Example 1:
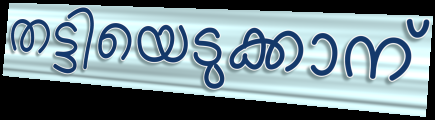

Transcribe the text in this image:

തട്ടിയെടുക്കാന്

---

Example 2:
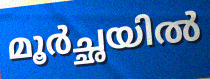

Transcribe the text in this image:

മൂർച്ഛയിൽ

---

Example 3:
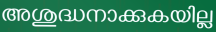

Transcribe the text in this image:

അശുദ്ധനാക്കുകയില്ല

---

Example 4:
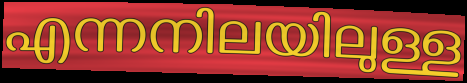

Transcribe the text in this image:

എന്നനിലയിലുള്ള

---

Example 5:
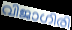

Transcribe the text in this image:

വിജാഗിരി